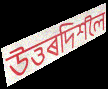
উত্তৰদিশলৈ